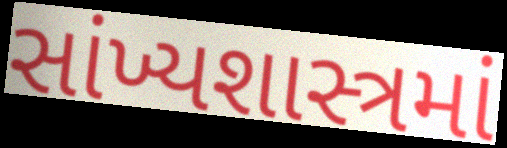
સાંખ્યશાસ્ત્રમાં